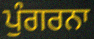
ਪੁੰਗਰਨਾ